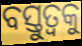
ବସ୍ତୁତ୍ଵକୁ